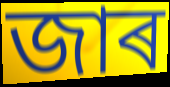
জাৰ